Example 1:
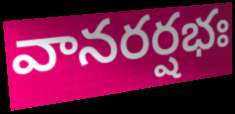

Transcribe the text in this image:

వానరర్షభః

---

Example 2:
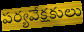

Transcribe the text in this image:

పర్యవేక్షకులు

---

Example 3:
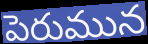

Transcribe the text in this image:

పెరుమున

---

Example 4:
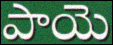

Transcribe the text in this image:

పాయె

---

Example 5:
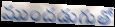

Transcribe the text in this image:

ముందడుగుతో